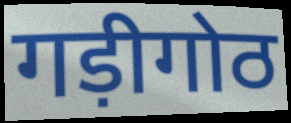
गड़ीगोठ